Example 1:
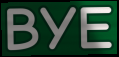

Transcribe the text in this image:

BYE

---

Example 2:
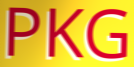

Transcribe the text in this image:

PKG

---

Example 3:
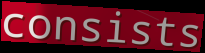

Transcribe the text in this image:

consists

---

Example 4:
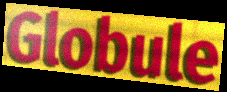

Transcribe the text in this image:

Globule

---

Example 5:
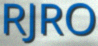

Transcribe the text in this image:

RJRO